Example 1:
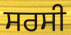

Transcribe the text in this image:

ਸਰਸੀ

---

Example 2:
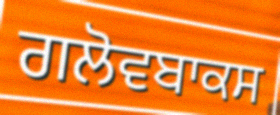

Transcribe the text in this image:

ਗਲੋਵਬਾਕਸ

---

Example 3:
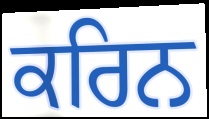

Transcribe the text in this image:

ਕਰਿਨ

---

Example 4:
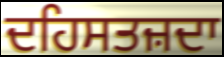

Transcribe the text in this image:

ਦਹਿਸਤਜ਼ਦਾ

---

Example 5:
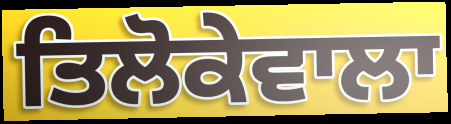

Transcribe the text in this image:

ਤਿਲੋਕੇਵਾਲਾ